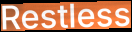
Restless